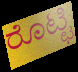
ರೊಟ್ಟಿ